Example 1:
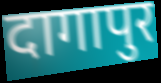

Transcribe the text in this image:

दागापुर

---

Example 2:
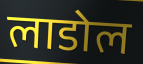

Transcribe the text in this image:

लाडोल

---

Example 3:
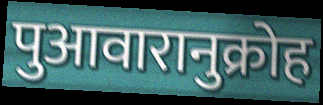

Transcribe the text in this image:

पुआवारानुक्रोह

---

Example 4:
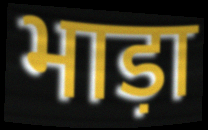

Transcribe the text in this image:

भाड़ा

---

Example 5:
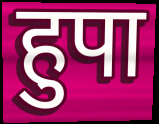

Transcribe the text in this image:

हुपा